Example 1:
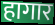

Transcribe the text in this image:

हागार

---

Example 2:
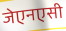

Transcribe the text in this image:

जेएनएसी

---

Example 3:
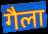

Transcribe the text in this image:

गैला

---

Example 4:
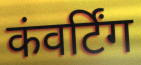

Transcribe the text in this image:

कंवर्टिंग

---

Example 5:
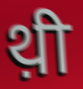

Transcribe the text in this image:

थ़ी